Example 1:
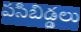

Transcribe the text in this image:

పసిబిడ్డలు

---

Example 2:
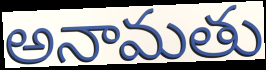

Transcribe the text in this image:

అనామతు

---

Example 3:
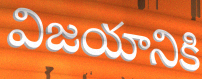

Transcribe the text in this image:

విజయానికి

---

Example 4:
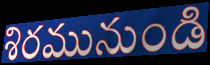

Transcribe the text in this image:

శిరమునుండి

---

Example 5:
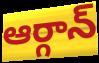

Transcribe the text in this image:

ఆర్గాన్